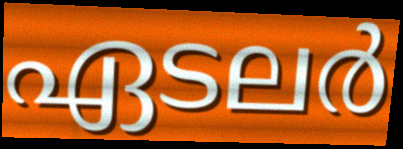
ഏടലർ